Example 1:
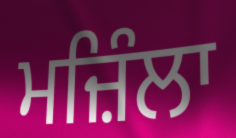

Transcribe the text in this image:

ਮਜ਼ਿੰਲਾ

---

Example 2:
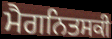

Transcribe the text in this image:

ਮੈਗਨਿਤਸਕੀ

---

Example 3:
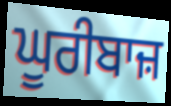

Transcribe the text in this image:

ਘੂਰੀਬਾਜ਼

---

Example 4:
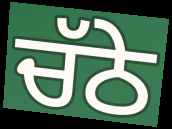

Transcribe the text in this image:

ਚੱਠੇ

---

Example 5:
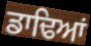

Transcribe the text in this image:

ਡਾਢਿਆਂ